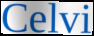
Celvi